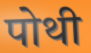
पोथी